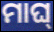
ମାଘ୍